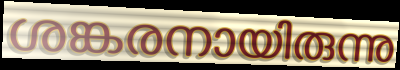
ശങ്കരനായിരുന്നു